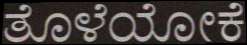
ತೊಳೆಯೋಕೆ